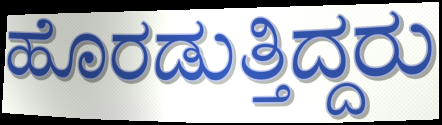
ಹೊರಡುತ್ತಿದ್ದರು